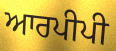
ਆਰਪੀਪੀ